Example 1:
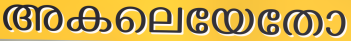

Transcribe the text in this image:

അകലെയേതോ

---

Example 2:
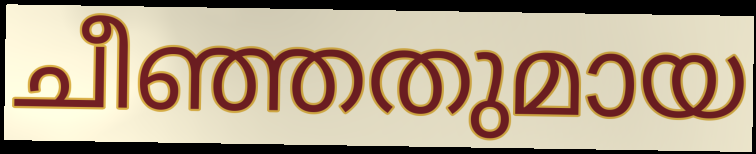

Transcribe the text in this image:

ചീഞ്ഞതുമായ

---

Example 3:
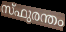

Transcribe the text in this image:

സ്ഫുരന്തം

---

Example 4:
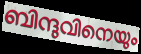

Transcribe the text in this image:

ബിന്ദുവിനെയും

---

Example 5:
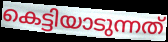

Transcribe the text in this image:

കെട്ടിയാടുന്നത്